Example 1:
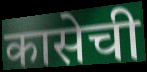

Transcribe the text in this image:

कासेची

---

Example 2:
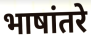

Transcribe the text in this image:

भाषांतरे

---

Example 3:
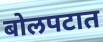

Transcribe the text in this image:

बोलपटात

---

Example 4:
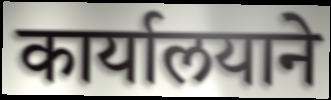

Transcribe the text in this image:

कार्यालयाने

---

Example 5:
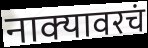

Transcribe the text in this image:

नाक्यावरचं